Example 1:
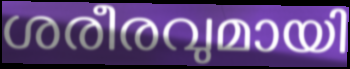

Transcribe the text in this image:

ശരീരവുമായി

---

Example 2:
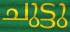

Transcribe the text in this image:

ചുട്ടു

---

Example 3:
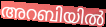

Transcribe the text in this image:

അറബിയിൽ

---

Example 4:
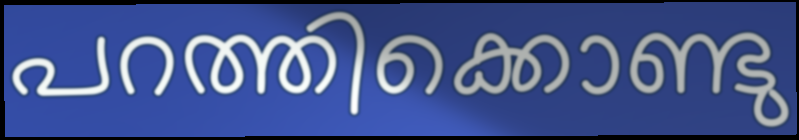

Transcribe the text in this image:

പറത്തിക്കൊണ്ടു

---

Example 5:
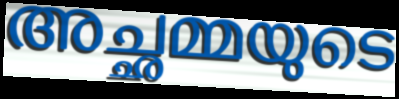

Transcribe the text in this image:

അച്ഛമ്മയുടെ